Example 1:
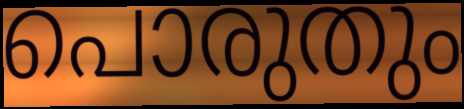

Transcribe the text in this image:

പൊരുതും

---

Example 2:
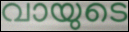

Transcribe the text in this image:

വായുടെ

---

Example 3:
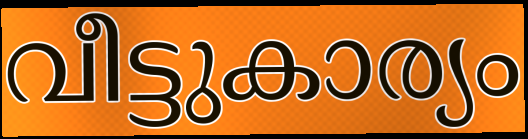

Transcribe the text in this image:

വീട്ടുകാര്യം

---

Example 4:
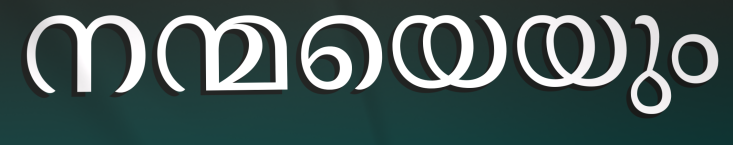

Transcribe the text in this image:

നന്മയെയും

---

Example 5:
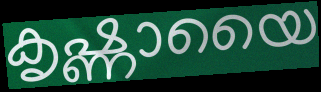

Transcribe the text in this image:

കൃഷ്ണായൈ